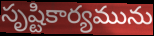
సృష్టికార్యమును